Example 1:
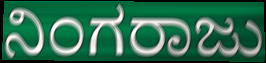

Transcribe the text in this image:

ನಿಂಗರಾಜು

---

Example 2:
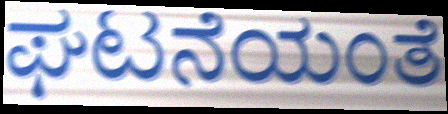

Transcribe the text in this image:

ಘಟನೆಯಂತೆ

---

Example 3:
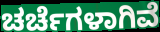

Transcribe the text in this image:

ಚರ್ಚೆಗಳಾಗಿವೆ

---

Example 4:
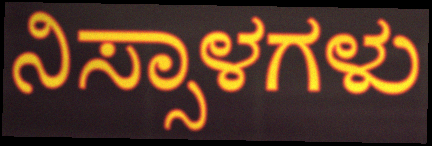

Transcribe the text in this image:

ನಿಸ್ಸಾಳಗಳು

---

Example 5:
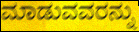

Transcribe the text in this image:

ಮಾಡುವವರನ್ನು